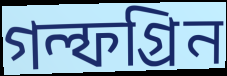
গল্ফগ্রিন